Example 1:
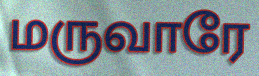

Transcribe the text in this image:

மருவாரே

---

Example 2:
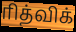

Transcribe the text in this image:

ரித்விக்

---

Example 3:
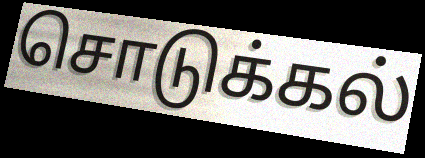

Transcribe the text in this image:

சொடுக்கல்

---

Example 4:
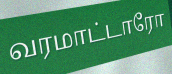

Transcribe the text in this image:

வரமாட்டாரோ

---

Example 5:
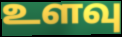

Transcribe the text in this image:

உளவு